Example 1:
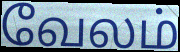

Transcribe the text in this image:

வேலம்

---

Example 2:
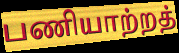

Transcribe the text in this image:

பணியாற்றத்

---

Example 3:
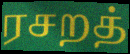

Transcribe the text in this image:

ரசறத்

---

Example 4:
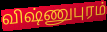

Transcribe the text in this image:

விஷ்ணுபுரம்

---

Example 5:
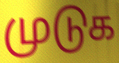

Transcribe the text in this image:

முடுக